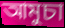
আমুচা